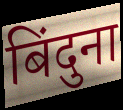
बिंदुना